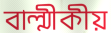
বাল্মীকীয়